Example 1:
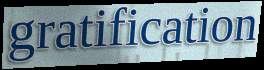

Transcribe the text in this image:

gratification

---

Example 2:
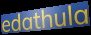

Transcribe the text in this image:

edathula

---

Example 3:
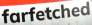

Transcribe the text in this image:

farfetched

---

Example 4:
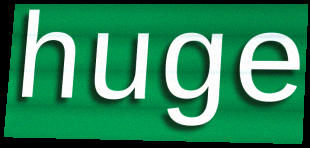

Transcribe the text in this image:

huge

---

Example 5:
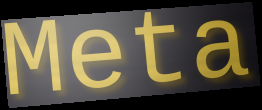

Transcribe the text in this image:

Meta